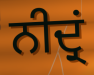
ਨੀਦ੍ਰਂ